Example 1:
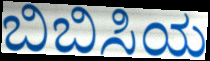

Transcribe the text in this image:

ಬಿಬಿಸಿಯ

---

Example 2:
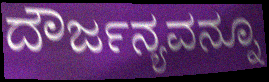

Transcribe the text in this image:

ದೌರ್ಜನ್ಯವನ್ನೂ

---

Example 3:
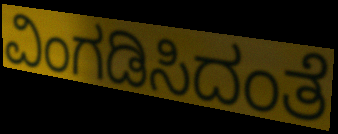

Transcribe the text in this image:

ವಿಂಗಡಿಸಿದಂತೆ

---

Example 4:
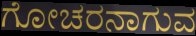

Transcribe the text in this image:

ಗೋಚರನಾಗುವ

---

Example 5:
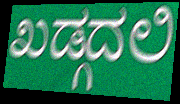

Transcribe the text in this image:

ಖಡ್ಗದಲಿ